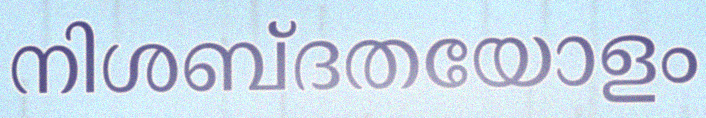
നിശബ്ദതയോളം